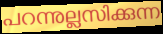
പറന്നുല്ലസിക്കുന്ന